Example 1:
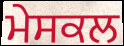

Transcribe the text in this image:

ਮੇਸਕਲ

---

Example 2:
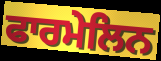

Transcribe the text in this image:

ਫਾਰਮੇਲਿਨ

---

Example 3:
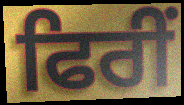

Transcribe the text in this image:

ਫਿਰੀਂ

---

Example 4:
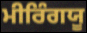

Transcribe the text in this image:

ਮੀਰਿੰਗਯੂ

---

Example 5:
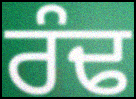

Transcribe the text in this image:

ਰੰਢ